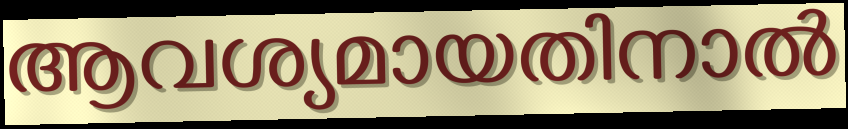
ആവശ്യമായതിനാൽ